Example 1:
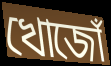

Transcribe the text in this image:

খোজোঁ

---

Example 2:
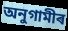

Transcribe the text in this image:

অনুগামীৰ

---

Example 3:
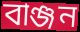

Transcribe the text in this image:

বাঞ্জন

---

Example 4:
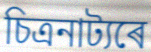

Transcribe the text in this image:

চিত্ৰনাট্যৰে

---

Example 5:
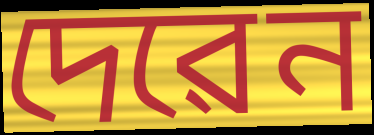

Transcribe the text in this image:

দেৱেন